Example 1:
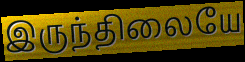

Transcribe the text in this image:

இருந்திலையே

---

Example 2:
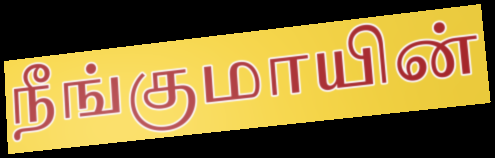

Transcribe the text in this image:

நீங்குமாயின்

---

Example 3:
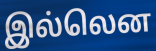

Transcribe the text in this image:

இல்லென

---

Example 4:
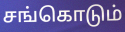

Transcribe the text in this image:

சங்கொடும்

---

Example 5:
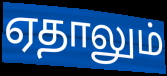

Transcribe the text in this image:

ஏதாலும்